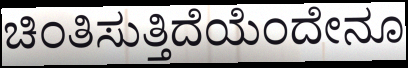
ಚಿಂತಿಸುತ್ತಿದೆಯೆಂದೇನೂ